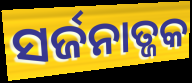
ସର୍ଜନାତ୍ଜକ